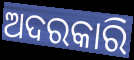
ଅଦରକାରି